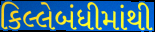
કિલ્લેબંધીમાંથી